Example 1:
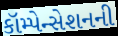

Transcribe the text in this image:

કૉમ્પેન્સેશનની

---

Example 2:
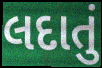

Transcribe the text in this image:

લદાતું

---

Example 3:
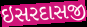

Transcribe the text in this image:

ઇસરદાસજી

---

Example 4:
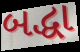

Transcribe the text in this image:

બદ્ધા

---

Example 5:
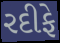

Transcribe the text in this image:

રદીફે